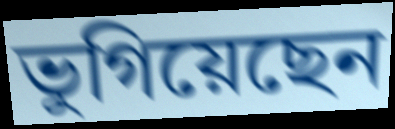
ভুগিয়েছেন